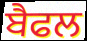
ਬੈਫਲ